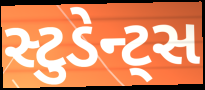
સ્ટુડેન્ટ્સ